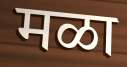
मळा